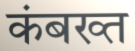
कंबख्त